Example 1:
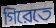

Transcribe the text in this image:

গিরেতে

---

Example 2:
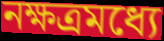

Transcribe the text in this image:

নক্ষত্রমধ্যে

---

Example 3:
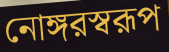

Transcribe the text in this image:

নোঙ্গরস্বরূপ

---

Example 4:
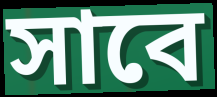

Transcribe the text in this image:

সাবে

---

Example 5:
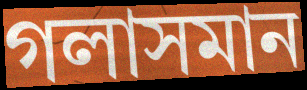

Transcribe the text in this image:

গলাসমান